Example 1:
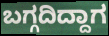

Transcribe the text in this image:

ಬಗ್ಗದಿದ್ದಾಗ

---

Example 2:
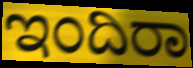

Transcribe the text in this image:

ಇಂದಿರಾ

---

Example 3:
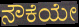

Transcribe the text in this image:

ನೌಕೆಯೇ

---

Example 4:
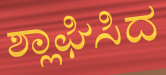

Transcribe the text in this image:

ಶ್ಲಾಘಿಸಿದ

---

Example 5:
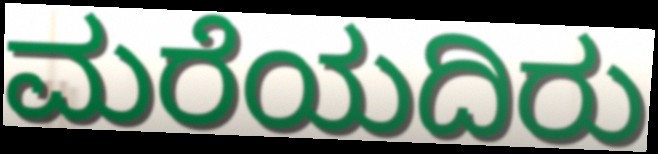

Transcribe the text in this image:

ಮರೆಯದಿರು